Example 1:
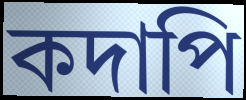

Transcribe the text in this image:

কদাপি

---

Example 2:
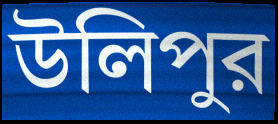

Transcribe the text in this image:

উলিপুর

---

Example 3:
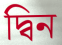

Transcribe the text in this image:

দ্বিন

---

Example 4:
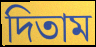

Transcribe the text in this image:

দিতাম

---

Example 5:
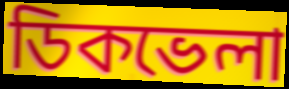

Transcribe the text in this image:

ডিকভেলা